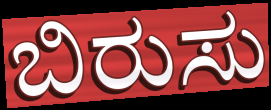
ಬಿರುಸು